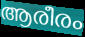
ആരീരം